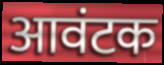
आवंटक